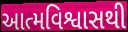
આત્મવિશ્વાસથી